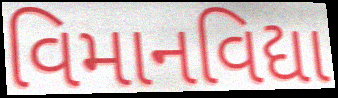
વિમાનવિદ્યા